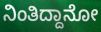
ನಿಂತಿದ್ದಾನೋ